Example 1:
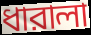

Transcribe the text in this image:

ধারালা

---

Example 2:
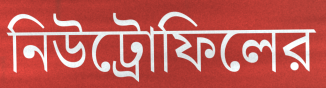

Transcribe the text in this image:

নিউট্রোফিলের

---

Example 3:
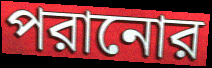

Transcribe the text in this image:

পরানোর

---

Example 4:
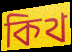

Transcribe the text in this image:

কিথ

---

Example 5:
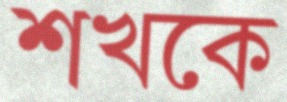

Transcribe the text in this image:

শখকে